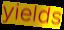
yields